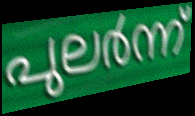
പുലർന്ന്